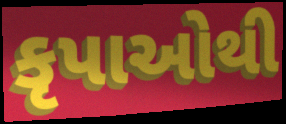
કૃપાઓથી